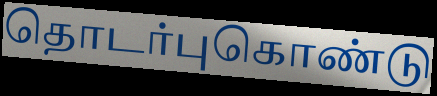
தொடர்புகொண்டு